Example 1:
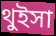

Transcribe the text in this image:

থুইসা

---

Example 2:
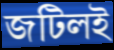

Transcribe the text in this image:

জটিলই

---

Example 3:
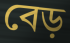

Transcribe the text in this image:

বেড়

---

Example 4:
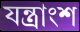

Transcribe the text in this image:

যন্ত্রাংশ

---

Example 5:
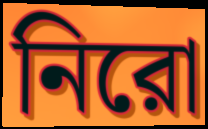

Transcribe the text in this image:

নিরো